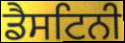
ਡੈਸਟਿਨੀ